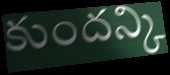
కుందన్కి